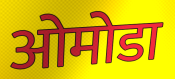
ओमोडा